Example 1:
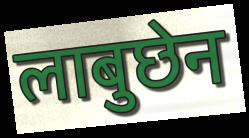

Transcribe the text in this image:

लाबुछेन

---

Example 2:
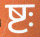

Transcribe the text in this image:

ष्टः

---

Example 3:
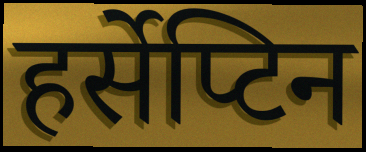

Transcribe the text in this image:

हर्सेप्टिन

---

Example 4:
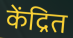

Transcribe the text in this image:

केंद्रित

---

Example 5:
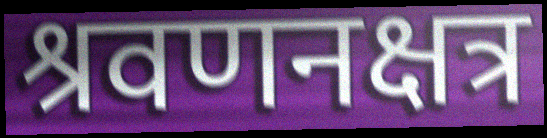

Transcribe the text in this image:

श्रवणनक्षत्र